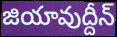
జియావుద్దీన్